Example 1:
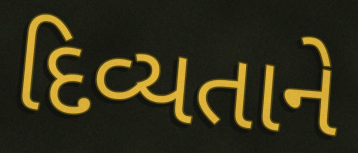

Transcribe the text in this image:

દિવ્યતાને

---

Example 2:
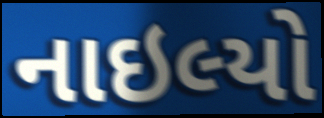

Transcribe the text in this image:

નાઇલ્યો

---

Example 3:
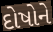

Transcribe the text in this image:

દોષોને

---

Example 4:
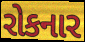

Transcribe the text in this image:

રોકનાર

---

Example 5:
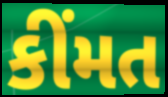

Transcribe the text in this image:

કીંમત